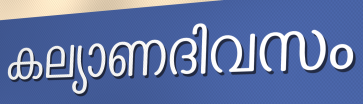
കല്യാണദിവസം